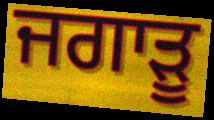
ਜਗਾੜੂ